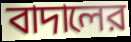
বাদালের